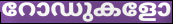
റോഡുകളോ